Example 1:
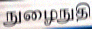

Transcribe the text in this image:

நுழைநுதி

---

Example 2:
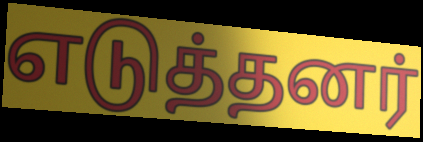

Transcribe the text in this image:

எடுத்தனர்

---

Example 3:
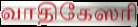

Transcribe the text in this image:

வாதிகேஸரி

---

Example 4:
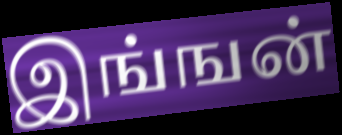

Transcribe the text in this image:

இங்ஙன்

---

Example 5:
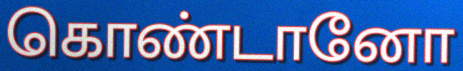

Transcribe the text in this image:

கொண்டானோ